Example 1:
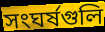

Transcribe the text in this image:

সংঘর্ষগুলি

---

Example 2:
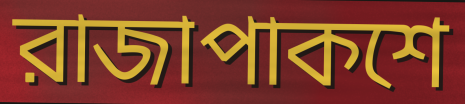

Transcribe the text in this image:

রাজাপাকশে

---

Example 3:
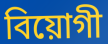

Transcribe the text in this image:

বিয়োগী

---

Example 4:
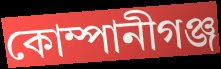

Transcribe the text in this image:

কোম্পানীগঞ্জ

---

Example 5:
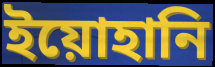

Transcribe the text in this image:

ইয়োহানি